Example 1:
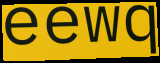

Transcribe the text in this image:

eewq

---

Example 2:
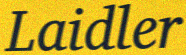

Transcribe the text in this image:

Laidler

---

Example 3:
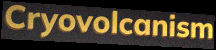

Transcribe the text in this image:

Cryovolcanism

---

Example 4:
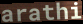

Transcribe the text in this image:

arathi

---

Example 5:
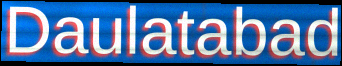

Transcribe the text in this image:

Daulatabad